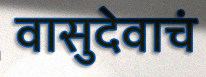
वासुदेवाचं